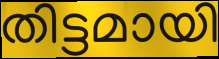
തിട്ടമായി